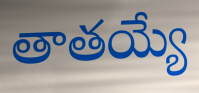
తాతయ్యే